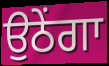
ਉਠੇਂਗਾ